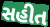
સહીત